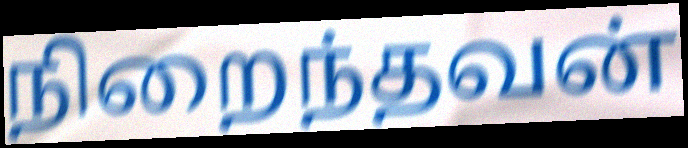
நிறைந்தவன்